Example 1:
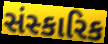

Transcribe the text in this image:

સંસ્કારિક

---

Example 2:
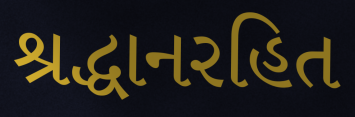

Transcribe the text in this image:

શ્રદ્ધાનરહિત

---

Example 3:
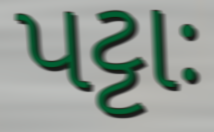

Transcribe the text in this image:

પટ્ટાઃ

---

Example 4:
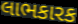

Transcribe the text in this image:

લાભકારક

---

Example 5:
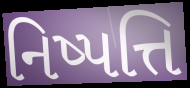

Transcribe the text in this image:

નિષ્પત્તિ